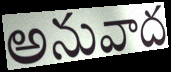
అనువాద